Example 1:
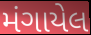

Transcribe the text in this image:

મંગાયેલ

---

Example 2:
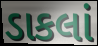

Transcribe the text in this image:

ડાકલાં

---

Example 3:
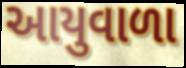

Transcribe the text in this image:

આયુવાળા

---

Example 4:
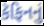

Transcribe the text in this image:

કૅફિનનું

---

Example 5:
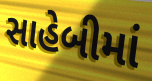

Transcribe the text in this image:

સાહેબીમાં